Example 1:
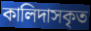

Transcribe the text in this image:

কালিদাসকৃত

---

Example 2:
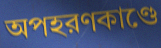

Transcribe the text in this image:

অপহরণকাণ্ডে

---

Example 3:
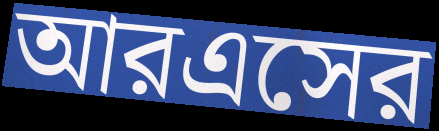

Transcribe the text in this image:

আরএসের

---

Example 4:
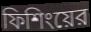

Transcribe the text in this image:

ফিশিংয়ের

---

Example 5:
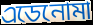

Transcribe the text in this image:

এডেনোমা